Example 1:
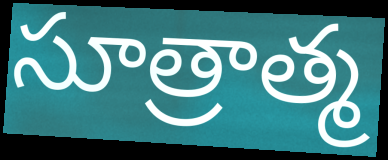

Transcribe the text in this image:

సూత్రాత్మ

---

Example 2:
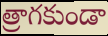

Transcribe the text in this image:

త్రాగకుండా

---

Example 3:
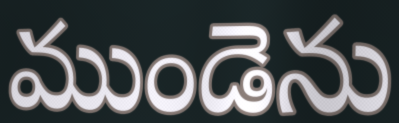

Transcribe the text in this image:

ముండెను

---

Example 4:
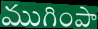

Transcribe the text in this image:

ముగింపా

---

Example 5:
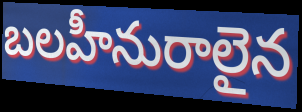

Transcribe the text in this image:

బలహీనురాలైన